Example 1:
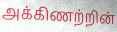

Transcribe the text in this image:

அக்கிணற்றின்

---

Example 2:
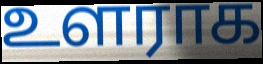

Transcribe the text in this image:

உளராக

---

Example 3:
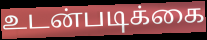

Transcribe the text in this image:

உடன்படிக்கை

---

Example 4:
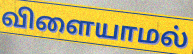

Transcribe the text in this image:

விளையாமல்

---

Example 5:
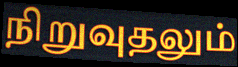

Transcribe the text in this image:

நிறுவுதலும்